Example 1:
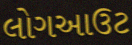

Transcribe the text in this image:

લોગઆઉટ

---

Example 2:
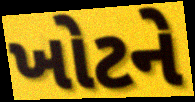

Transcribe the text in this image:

ખોટને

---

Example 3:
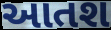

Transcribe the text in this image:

આતશ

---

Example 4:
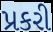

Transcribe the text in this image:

પ્રકરી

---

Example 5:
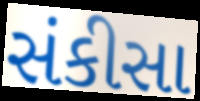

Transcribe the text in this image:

સંકીસા